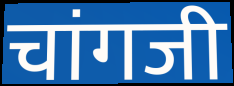
चांगजी